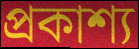
প্ৰকাশ্য